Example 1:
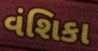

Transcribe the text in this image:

વંશિકા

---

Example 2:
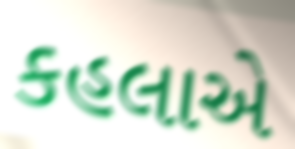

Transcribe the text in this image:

કહલાએ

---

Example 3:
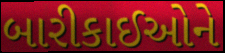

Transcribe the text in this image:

બારીકાઈઓને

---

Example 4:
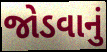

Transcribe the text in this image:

જોડવાનું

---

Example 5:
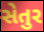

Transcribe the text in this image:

સેતુર